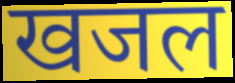
खजल